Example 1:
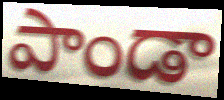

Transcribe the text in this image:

పాండా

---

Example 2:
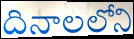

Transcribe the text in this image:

దినాలలోని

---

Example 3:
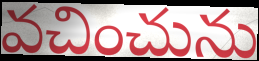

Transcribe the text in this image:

వచించును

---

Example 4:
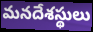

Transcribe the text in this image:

మనదేశస్థులు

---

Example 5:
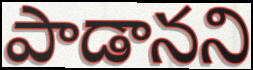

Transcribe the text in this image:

పాడానని